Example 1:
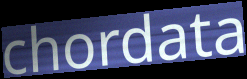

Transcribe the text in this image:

chordata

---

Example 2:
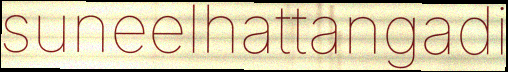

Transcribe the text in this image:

suneelhattangadi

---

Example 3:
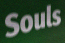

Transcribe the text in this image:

Souls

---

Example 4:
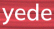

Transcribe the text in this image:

yede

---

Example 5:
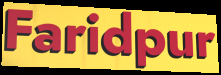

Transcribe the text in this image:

Faridpur